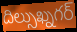
దిల్సుఖ్నగర్